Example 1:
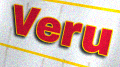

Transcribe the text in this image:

Veru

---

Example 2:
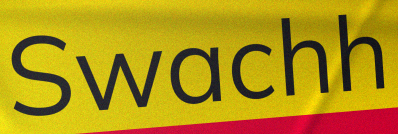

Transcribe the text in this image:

Swachh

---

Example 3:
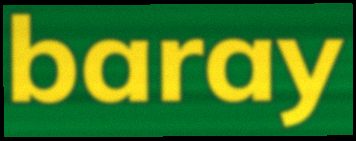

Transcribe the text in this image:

baray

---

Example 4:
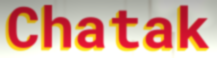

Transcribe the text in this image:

Chatak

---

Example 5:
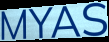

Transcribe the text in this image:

MYAS